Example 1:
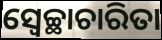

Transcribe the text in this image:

ସ୍ୱେଚ୍ଛାଚାରିତା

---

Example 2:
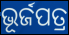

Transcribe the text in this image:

ଭୂର୍ଜପତ୍ର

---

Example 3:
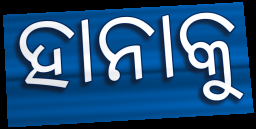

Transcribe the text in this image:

ହାନାକୁ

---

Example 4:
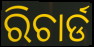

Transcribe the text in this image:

ରିଚାର୍ଡ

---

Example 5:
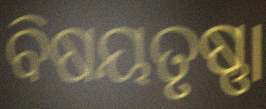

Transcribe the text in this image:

ବିଷୟତୃଷ୍ଣା